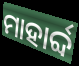
ମାହାର୍ବ୍ଦ